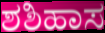
ಶಶಿಹಾಸ